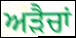
ਅੜੈਚਾਂ